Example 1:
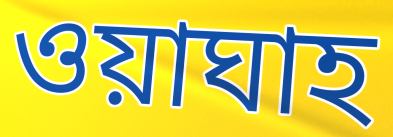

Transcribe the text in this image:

ওয়াঘাহ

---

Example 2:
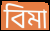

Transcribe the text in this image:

বিমা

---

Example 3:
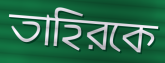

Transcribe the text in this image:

তাহিরকে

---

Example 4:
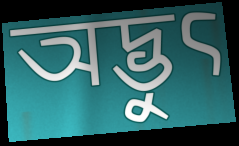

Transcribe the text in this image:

অদ্ভুৎ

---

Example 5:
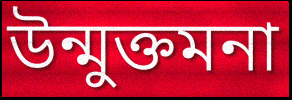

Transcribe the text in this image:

উন্মুক্তমনা